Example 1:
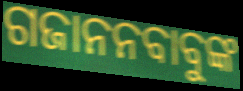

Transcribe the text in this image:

ଗଜାନନବାବୁଙ୍କ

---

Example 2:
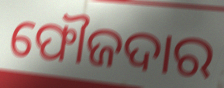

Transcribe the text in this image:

ଫୌଜଦାର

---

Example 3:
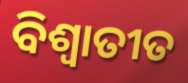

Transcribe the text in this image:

ବିଶ୍ୱାତୀତ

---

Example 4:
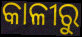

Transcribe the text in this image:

କାଳୀରୁ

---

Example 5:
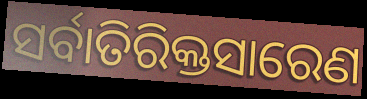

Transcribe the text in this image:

ସର୍ବାତିରିକ୍ତସାରେଣ